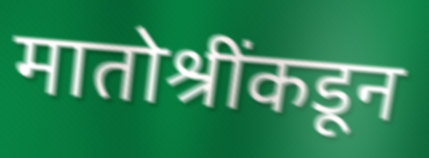
मातोश्रींकडून